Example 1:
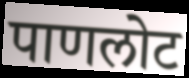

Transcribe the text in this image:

पाणलोट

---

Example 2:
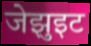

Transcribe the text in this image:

जेझुइट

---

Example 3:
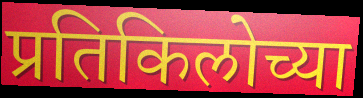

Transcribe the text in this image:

प्रतिकिलोच्या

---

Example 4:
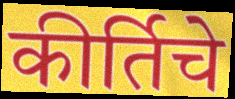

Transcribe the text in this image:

कीर्तिचे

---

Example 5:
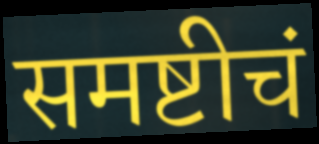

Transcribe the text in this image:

समष्टीचं